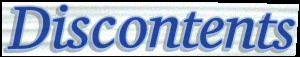
Discontents